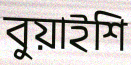
বুয়াইশি